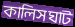
কালিসঘাট